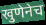
खुणेनेच